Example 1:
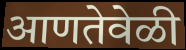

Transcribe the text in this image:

आणतेवेळी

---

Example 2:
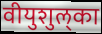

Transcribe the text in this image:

वीयुशुल्का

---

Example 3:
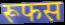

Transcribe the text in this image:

रूफस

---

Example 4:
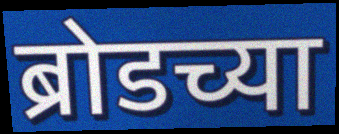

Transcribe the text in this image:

ब्रोडच्या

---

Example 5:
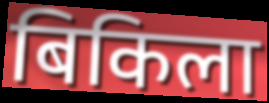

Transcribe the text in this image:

बिकिला